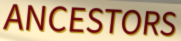
ANCESTORS